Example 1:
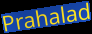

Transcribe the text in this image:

Prahalad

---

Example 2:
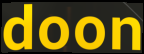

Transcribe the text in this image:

doon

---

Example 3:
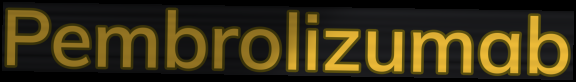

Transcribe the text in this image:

Pembrolizumab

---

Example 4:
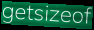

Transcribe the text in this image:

getsizeof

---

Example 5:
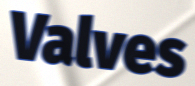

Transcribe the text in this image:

Valves